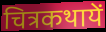
चित्रकथायें